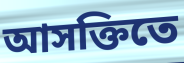
আসক্তিতে